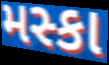
મસ્કા